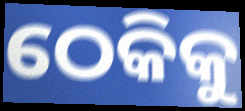
ଠେକିକୁ